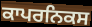
ਕਾਪਰਨਿਕਸ